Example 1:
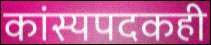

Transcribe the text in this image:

कांस्यपदकही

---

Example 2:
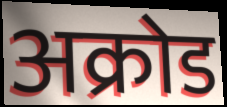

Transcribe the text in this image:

अक्रोड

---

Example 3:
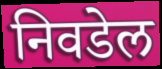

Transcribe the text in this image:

निवडेल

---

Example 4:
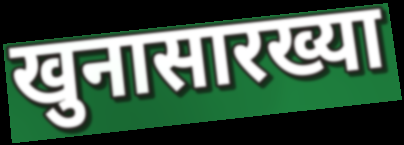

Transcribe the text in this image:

खुनासारख्या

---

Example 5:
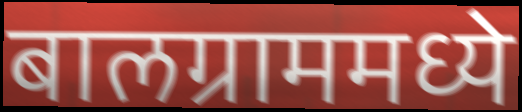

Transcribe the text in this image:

बालग्राममध्ये